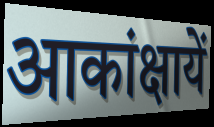
आकांक्षायें